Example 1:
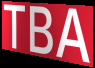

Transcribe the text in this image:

TBA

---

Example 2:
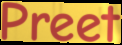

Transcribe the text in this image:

Preet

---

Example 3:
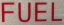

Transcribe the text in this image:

FUEL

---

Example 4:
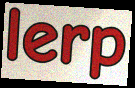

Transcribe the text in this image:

lerp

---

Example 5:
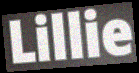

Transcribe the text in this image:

Lillie